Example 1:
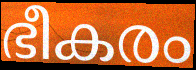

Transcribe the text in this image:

ഭീകരം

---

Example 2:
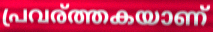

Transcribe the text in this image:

പ്രവര്ത്തകയാണ്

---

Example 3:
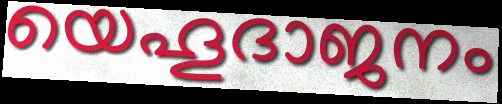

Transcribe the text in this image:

യെഹൂദാജനം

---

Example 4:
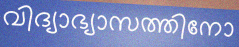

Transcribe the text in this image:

വിദ്യാഭ്യാസത്തിനോ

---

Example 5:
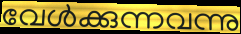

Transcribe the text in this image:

വേൾക്കുന്നവന്നു